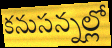
కనుసన్నల్లో